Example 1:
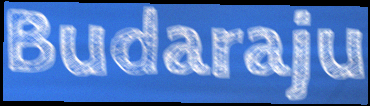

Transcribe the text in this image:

Budaraju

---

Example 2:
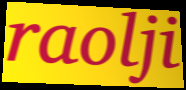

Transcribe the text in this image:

raolji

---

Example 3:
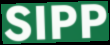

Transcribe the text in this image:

SIPP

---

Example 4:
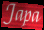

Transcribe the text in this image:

Japa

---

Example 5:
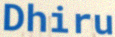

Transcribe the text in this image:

Dhiru